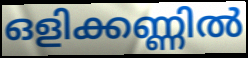
ഒളിക്കണ്ണിൽ